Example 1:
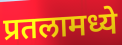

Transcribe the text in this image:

प्रतलामध्ये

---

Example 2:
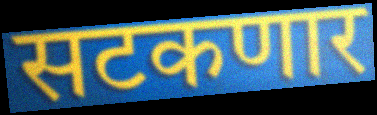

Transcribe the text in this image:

सटकणार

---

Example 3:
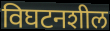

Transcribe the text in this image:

विघटनशील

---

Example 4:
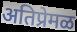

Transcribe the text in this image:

अतिप्रेमळ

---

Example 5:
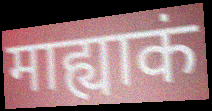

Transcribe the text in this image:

माह्याकं